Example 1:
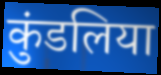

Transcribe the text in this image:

कुंडलिया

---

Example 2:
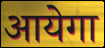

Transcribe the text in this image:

आयेगा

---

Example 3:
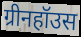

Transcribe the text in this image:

ग्रीनहॉउस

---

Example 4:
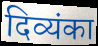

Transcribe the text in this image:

दिव्यंका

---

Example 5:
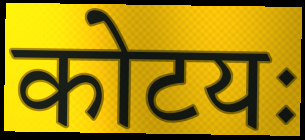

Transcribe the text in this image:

कोटयः